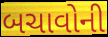
બચાવોની